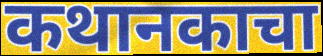
कथानकाचा